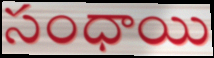
సంధాయి